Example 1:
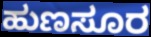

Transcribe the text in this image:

ಹುಣಸೂರ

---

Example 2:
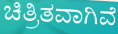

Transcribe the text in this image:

ಚಿತ್ರಿತವಾಗಿವೆ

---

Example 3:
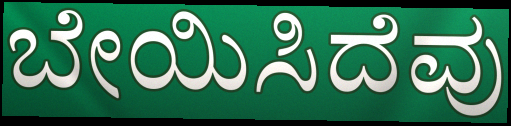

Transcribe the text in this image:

ಬೇಯಿಸಿದೆವು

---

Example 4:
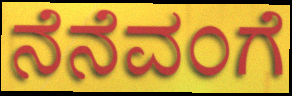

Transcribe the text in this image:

ನೆನೆವಂಗೆ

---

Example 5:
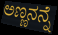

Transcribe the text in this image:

ಅಣ್ಣನನ್ನೆ